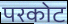
परकोट